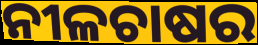
ନୀଳଚାଷର